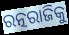
ରତ୍ନରାଜିକୁ